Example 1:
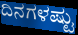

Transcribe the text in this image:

ದಿನಗಳಷ್ಟು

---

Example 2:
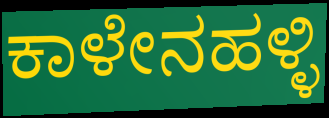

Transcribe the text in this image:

ಕಾಳೇನಹಳ್ಳಿ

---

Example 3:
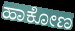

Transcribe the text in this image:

ಹಾಕೋಣ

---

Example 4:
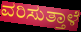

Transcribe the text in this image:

ವರಿಸುತ್ತಾಳೆ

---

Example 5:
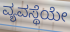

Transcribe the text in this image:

ವ್ಯವಸ್ಥೆಯೇ